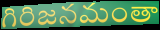
గిరిజనమంతా